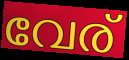
വേര്